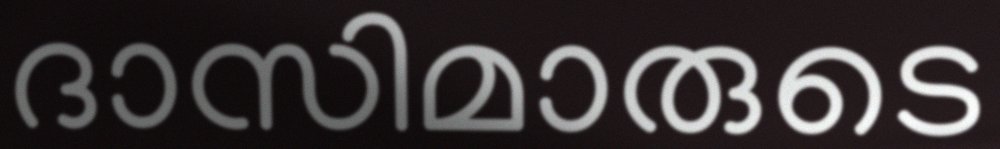
ദാസിമാരുടെ